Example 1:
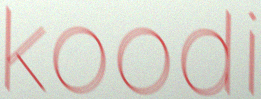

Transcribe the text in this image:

koodi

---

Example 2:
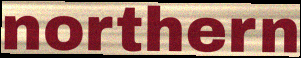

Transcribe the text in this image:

northern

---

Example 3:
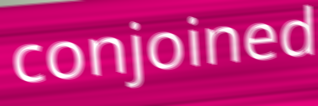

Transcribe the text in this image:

conjoined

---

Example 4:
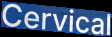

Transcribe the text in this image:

Cervical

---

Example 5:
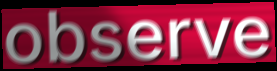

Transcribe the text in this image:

observe